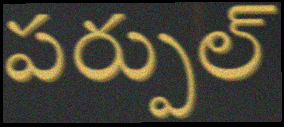
పర్పుల్